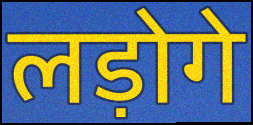
लड़ोगे